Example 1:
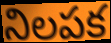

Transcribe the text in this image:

నిలపక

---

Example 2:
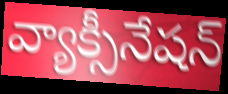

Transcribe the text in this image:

వ్యాక్సీనేషన్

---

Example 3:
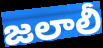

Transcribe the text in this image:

జలాలీ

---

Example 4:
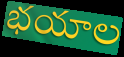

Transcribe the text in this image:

భయాల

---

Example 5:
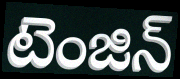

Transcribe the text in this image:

టెంజిన్